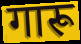
गारू